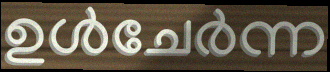
ഉൾചേർന്ന